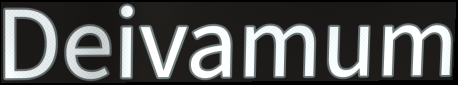
Deivamum